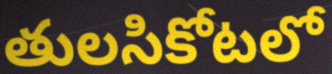
తులసికోటలో